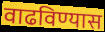
वाढविण्यास